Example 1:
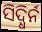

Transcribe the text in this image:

ସିଦ୍ଧିର୍ନ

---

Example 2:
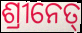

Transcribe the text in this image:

ଶ୍ରୀନେତ୍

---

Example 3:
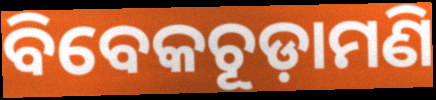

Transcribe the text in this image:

ବିବେକଚୂଡ଼ାମଣି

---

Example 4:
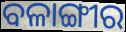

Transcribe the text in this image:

ବଳାଙ୍ଗୀର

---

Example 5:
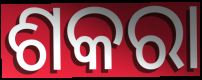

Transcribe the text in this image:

ଶକରା